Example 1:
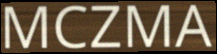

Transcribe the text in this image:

MCZMA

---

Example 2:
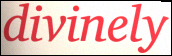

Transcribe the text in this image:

divinely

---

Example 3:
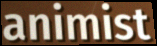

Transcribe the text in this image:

animist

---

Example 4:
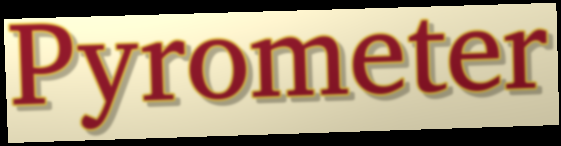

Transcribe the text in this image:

Pyrometer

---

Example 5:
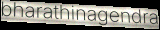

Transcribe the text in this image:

bharathinagendra